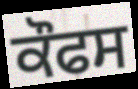
ਕੌਫਸ